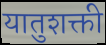
यातुशक्ती